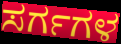
ಸರ್ಗಗಳ